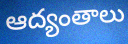
ఆద్యంతాలు